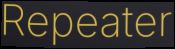
Repeater